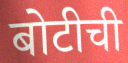
बोटीची